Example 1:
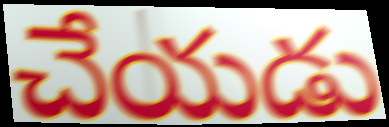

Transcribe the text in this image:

చేయడు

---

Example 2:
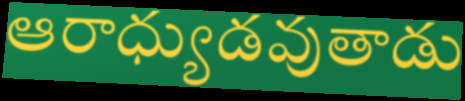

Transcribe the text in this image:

ఆరాధ్యుడవుతాడు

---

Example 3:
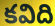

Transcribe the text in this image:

కవిది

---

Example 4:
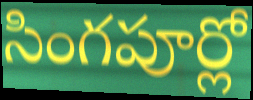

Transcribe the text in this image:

సింగపూర్లో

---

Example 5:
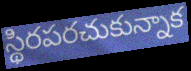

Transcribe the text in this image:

స్థిరపరచుకున్నాక